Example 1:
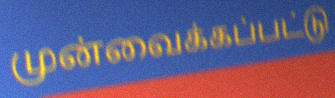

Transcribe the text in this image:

முன்வைக்கப்பட்டு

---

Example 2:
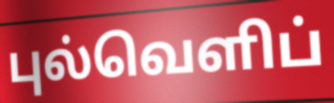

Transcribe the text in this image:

புல்வெளிப்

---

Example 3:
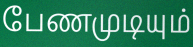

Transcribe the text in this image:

பேணமுடியும்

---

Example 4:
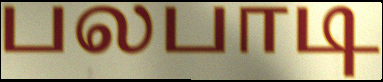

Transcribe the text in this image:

பலபாடி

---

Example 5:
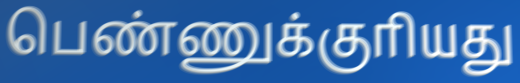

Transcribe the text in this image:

பெண்ணுக்குரியது